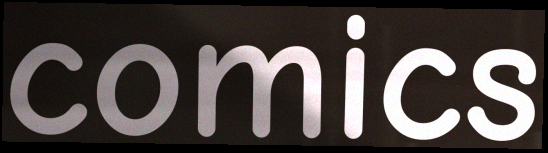
comics